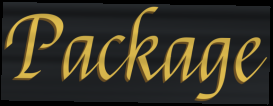
Package